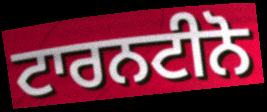
ਟਾਰਨਟੀਨੋ